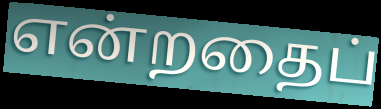
என்றதைப்